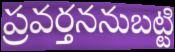
ప్రవర్తననుబట్టి